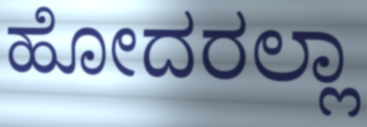
ಹೋದರಲ್ಲಾ